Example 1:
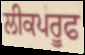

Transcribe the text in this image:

ਲੀਕਪਰੂਫ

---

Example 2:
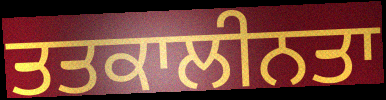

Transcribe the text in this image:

ਤਤਕਾਲੀਨਤਾ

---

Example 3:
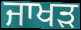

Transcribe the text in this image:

ਜਾਖੜ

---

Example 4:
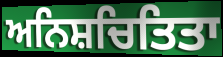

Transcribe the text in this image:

ਅਨਿਸ਼ਚਿਤਿਤਾ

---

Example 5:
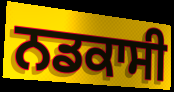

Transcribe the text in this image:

ਨਡਕਾਸੀ